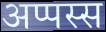
अप्पस्स